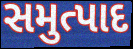
સમુત્પાદ